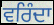
ਵਰਿੰਦਾ